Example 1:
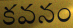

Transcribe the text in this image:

కవనం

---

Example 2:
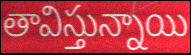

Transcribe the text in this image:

తావిస్తున్నాయి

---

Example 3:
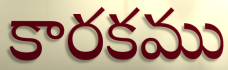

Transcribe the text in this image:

కారకము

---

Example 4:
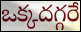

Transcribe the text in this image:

ఒక్కదగ్గరే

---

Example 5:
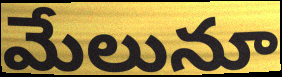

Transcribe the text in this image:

మేలునూ